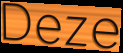
Deze